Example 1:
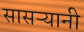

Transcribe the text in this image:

सासऱ्यानी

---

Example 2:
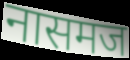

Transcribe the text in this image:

नासमज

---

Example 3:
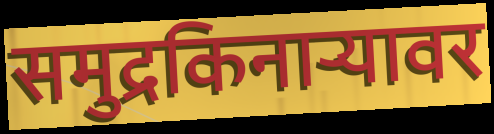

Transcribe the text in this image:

समुद्रकिनाऱ्यावर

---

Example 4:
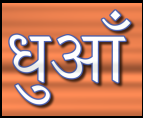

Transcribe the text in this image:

धुआँ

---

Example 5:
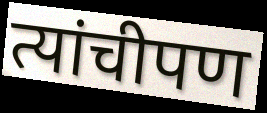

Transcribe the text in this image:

त्यांचीपण